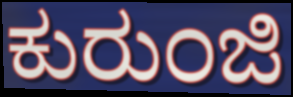
ಕುರುಂಜಿ